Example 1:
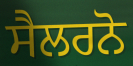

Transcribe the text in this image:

ਸੈਲਰਨੋ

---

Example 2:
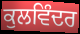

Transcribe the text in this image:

ਕੁਲਵਿੰਦਰ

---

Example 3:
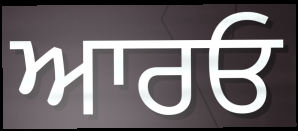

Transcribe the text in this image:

ਆਰਓ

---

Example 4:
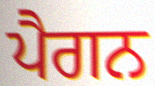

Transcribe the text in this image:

ਪੈਗਨ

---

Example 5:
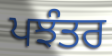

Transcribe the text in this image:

ਪਝੰਤਰ